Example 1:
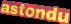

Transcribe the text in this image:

astondu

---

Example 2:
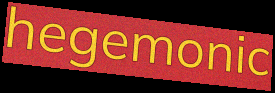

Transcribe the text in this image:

hegemonic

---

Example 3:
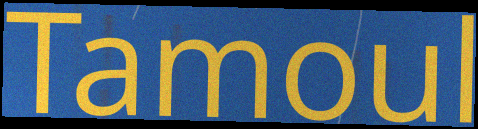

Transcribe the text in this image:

Tamoul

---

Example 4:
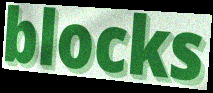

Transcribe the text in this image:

blocks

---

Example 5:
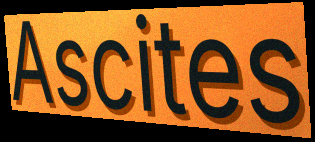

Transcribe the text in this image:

Ascites